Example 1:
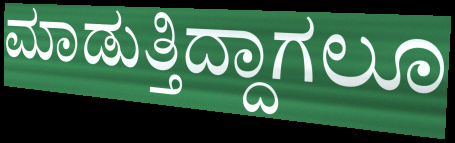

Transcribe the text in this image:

ಮಾಡುತ್ತಿದ್ದಾಗಲೂ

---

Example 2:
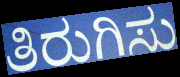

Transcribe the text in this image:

ತಿರುಗಿಸು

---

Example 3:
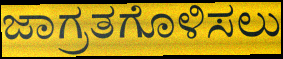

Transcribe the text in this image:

ಜಾಗ್ರತಗೊಳಿಸಲು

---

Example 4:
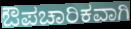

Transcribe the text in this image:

ಔಪಚಾರಿಕವಾಗಿ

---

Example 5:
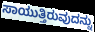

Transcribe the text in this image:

ಸಾಯುತ್ತಿರುವುದನ್ನು